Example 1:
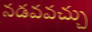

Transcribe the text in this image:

నడవవచ్చు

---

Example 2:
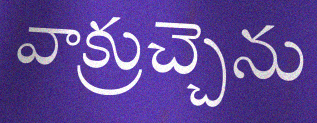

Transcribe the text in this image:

వాక్రుచ్చెను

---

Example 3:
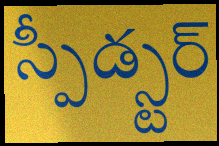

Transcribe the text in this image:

స్పీడ్స్టర్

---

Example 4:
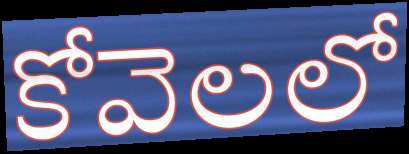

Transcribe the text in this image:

కోవెలలో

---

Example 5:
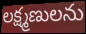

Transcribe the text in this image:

లక్ష్మణులను